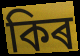
কিৰ